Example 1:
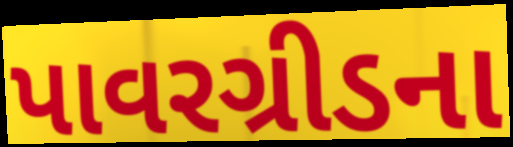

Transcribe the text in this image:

પાવરગ્રીડના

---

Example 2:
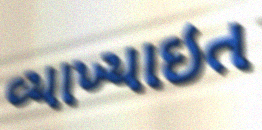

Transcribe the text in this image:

વ્યાખ્યાઇત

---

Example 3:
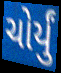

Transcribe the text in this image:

ચોર્યું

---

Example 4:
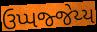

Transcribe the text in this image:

ઉપ્પજ્જેય્ય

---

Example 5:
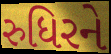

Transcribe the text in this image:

રુધિરને